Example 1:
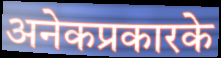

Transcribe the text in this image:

अनेकप्रकारके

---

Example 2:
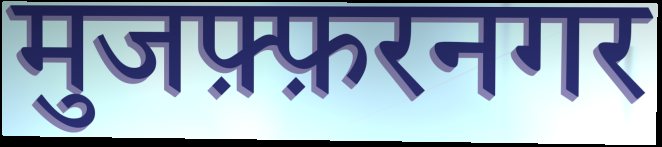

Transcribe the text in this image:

मुजफ़्फ़रनगर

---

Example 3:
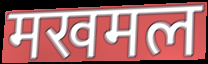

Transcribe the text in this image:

मखमल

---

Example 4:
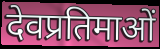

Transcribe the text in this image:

देवप्रतिमाओं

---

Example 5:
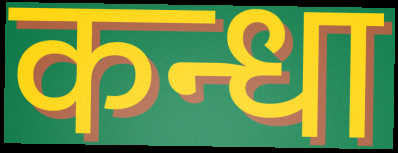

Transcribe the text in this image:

कन्धा